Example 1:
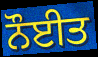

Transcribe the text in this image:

ਨੌਈਤ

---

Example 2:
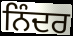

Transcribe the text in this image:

ਨਿੰਦਰ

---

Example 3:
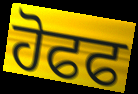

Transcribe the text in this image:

ਹੋਫਫ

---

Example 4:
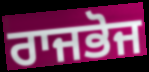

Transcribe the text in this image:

ਰਾਜਭੋਜ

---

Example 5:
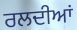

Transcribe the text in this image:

ਰਲਦੀਆਂ